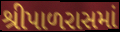
શ્રીપાળરાસમાં